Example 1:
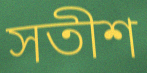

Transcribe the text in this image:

সতীশ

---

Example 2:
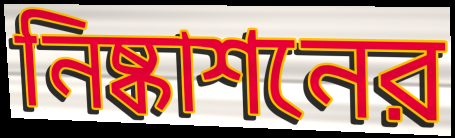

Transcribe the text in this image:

নিষ্কাশনের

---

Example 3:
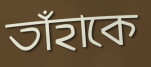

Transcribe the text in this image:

তাঁহাকে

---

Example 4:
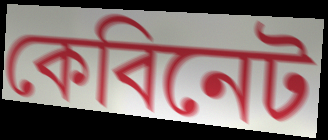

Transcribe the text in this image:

কেবিনেট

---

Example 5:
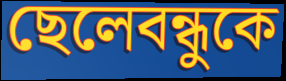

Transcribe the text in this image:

ছেলেবন্ধুকে